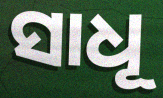
ସାଧୂ